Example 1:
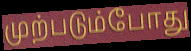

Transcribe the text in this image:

முற்படும்போது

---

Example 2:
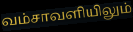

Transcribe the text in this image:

வம்சாவளியிலும்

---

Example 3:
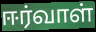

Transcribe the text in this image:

ஈர்வாள்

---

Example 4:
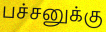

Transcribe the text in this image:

பச்சனுக்கு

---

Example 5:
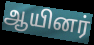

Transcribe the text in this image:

ஆயினர்